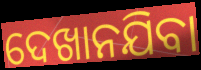
ଦେଖାନଯିବା